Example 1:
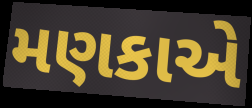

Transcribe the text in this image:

મણકાએ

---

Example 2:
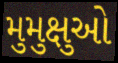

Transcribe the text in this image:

મુમુક્ષુઓ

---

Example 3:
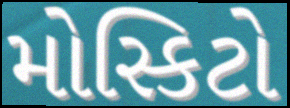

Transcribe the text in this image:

મોસ્કિટો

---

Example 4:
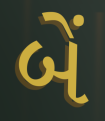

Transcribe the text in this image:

બેં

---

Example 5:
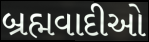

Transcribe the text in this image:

બ્રહ્મવાદીઓ